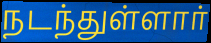
நடந்துள்ளார்